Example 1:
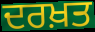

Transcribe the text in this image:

ਦਰਖ਼ਤ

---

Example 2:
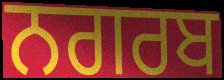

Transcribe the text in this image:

ਨਗਰਬ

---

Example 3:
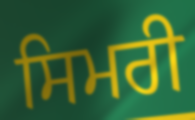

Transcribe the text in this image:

ਸਿਮਰੀ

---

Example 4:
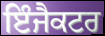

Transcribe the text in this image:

ਇੰਜੈਕਟਰ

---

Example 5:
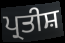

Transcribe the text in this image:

ਪ੍ਰਤੀਸ਼